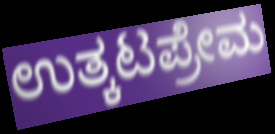
ಉತ್ಕಟಪ್ರೇಮ